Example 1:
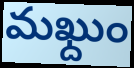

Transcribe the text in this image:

మఖ్దుం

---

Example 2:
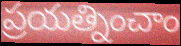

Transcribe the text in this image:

ప్రయత్నించాం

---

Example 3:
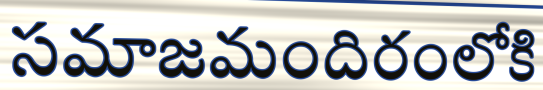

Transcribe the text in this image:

సమాజమందిరంలోకి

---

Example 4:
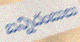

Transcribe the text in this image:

బన్నిదంబులు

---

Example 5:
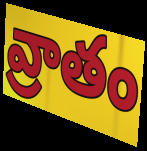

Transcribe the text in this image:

వ్రాతం